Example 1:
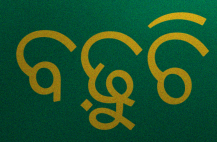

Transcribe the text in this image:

ବଢ଼ୁଚି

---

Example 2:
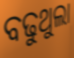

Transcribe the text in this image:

ବଢୁଥୁଲା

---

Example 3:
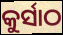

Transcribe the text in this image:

କୁର୍ସାଠ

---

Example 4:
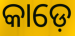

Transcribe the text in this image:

କାଡ଼େ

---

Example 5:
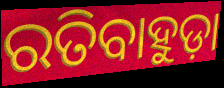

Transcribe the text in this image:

ରତିବାହୁଡ଼ା